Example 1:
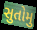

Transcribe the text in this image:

સુતોમુ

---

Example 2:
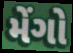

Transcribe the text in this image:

મેંગો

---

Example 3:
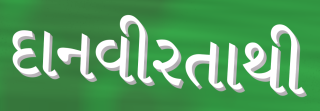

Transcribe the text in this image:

દાનવીરતાથી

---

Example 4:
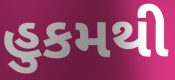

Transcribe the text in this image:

હુકમથી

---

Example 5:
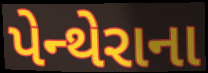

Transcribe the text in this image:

પેન્થેરાના